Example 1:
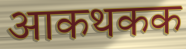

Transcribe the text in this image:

आकथकक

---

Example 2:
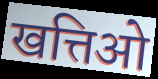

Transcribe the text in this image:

खत्तिओ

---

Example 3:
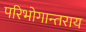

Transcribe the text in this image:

परिभोगान्तराय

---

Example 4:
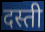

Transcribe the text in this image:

दस्ती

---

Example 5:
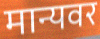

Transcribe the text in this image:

मान्‍यवर